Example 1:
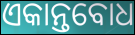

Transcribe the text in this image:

ଏକାନ୍ତବୋଧ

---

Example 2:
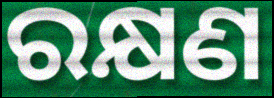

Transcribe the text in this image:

ରକ୍ଷଣ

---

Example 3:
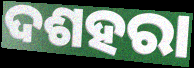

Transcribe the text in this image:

ଦଶହରା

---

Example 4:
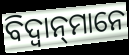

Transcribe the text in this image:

ବିଦ୍ୱାନ୍‌ମାନେ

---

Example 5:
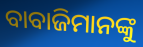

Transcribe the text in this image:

ବାବାଜିମାନଙ୍କୁ